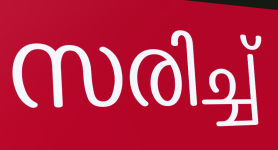
സരിച്ച്